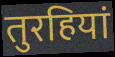
तुरहियां